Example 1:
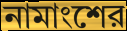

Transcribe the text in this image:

নামাংশের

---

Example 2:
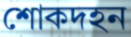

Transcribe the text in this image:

শোকদহন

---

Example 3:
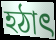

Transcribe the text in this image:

হঠাৎ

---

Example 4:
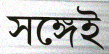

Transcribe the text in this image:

সঙ্গেই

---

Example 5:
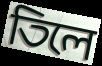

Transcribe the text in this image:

তিলে